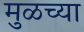
मुळच्या